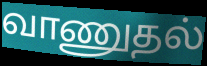
வாணுதல்